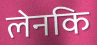
लेनकि